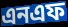
এনএফ